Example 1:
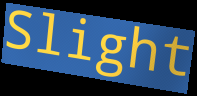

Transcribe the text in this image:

Slight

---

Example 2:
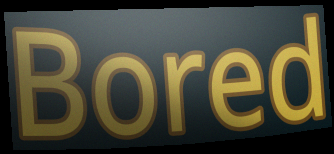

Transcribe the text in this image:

Bored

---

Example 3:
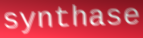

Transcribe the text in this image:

synthase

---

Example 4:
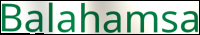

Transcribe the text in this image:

Balahamsa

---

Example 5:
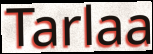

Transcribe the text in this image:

Tarlaa